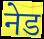
नेड